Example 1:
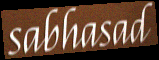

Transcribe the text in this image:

sabhasad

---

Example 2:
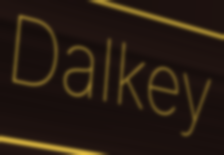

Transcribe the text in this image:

Dalkey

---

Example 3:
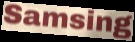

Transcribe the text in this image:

Samsing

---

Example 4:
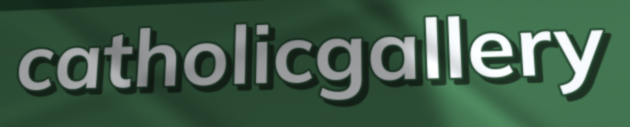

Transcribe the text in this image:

catholicgallery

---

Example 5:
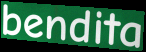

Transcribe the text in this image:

bendita